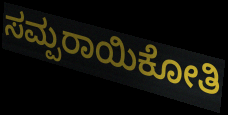
ಸಮ್ಪರಾಯಿಕೋತಿ